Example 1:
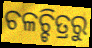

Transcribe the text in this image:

ଚଳଚ୍ଚିତ୍ରରୁ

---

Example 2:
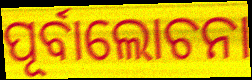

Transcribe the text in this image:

ପୂର୍ବାଲୋଚନା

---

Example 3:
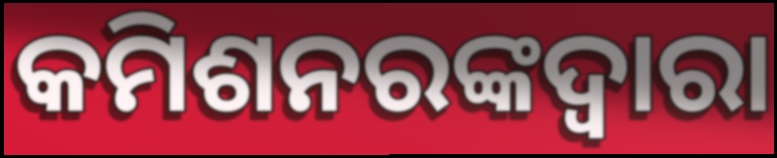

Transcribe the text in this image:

କମିଶନରଙ୍କଦ୍ୱାରା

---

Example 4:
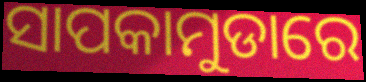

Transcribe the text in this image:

ସାପକାମୁଡାରେ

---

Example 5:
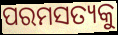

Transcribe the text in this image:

ପରମସତ୍ୟକୁ